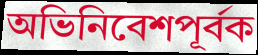
অভিনিবেশপূর্বক